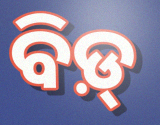
ବିଡ଼୍